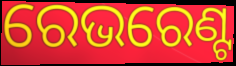
ରେଭରେଣ୍ଟ